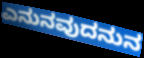
ಎನುನವುದನುನ